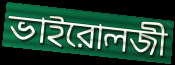
ভাইরোলজী